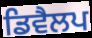
ਡਿਵੈਲਪ